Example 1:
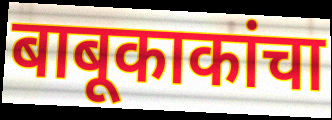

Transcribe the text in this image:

बाबूकाकांचा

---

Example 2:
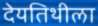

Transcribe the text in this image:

देयतिथीला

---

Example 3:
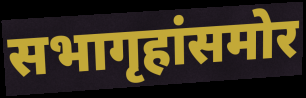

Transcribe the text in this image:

सभागृहांसमोर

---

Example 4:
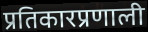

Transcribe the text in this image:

प्रतिकारप्रणाली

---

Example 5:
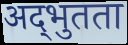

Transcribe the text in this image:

अद्‌भुतता